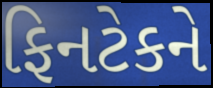
ફિનટેકને